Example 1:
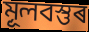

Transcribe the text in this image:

মূলবস্তুৰ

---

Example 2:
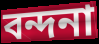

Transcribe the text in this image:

বন্দনা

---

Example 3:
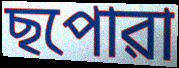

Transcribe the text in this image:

ছপোৱা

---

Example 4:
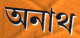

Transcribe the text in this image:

অনাথ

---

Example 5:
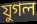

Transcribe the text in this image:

যুগল